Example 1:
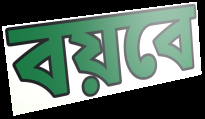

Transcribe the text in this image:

বয়বে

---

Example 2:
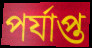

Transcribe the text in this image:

পর্যাপ্ত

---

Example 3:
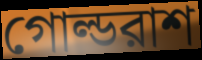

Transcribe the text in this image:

গোল্ডরাশ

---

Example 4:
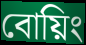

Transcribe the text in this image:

বোয়িং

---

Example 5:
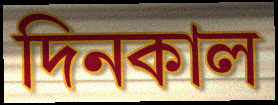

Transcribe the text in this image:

দিনকাল